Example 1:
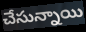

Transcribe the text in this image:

చేసున్నాయి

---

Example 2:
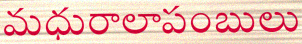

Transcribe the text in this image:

మధురాలాపంబులు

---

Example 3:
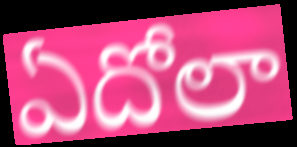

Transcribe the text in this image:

ఏదోలా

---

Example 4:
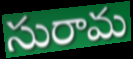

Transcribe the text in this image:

సురామ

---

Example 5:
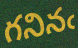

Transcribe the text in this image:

గనినఁ